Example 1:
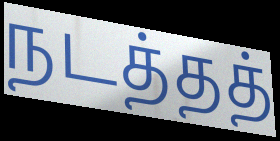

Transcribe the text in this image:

நடத்தத்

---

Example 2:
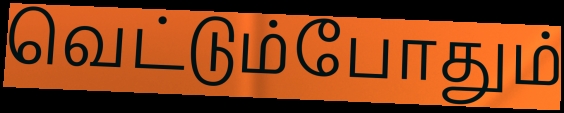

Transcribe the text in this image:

வெட்டும்போதும்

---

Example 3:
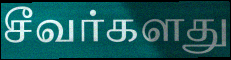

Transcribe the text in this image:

சீவர்களது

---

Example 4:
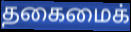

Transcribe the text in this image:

தகைமைக்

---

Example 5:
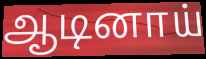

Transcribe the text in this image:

ஆடினாய்